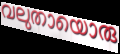
വലുതായൊരു